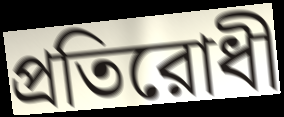
প্রতিরোধী